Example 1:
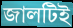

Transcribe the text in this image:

জালটিই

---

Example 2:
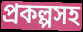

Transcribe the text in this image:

প্রকল্পসহ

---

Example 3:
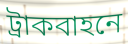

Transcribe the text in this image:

ট্রাকবাহনে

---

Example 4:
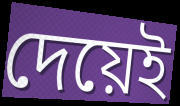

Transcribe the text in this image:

দেয়েই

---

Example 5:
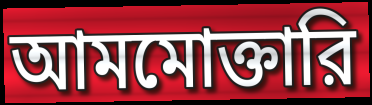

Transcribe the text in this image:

আমমোক্তারি